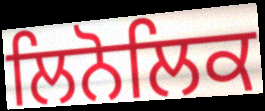
ਲਿਨੋਲਿਕ